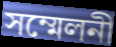
সম্মেলনী